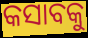
କସାବକୁ